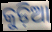
କୁଡ଼ିଆ